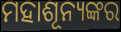
ମହାଶୂନ୍ୟଙ୍କର